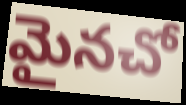
మైనచో